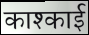
काश्काई